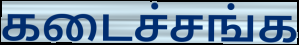
கடைச்சங்க